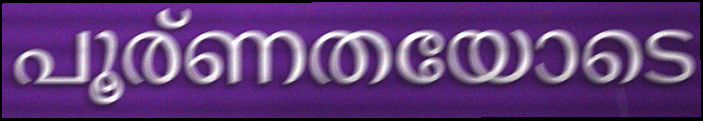
പൂര്ണതയോടെ